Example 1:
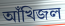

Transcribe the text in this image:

আঁখিজল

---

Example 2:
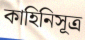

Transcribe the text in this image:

কাহিনিসূত্র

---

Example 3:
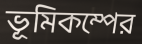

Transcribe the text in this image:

ভূমিকম্পের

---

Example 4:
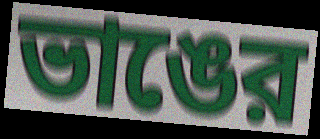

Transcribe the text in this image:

ভাঙের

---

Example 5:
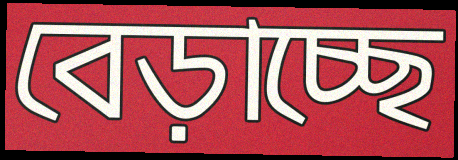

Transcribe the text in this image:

বেড়াচ্ছে